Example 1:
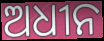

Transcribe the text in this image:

ଅଧୀନ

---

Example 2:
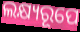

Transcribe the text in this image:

ଲକ୍ଷ୍ୟରୂପେ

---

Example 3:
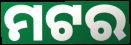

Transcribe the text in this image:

ମଟର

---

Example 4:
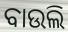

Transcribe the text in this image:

ବାଉଲି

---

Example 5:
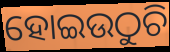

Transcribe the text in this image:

ହୋଇଉଠୁଚି